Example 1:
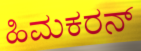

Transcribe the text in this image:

ಹಿಮಕರನ್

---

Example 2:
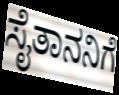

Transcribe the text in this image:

ಸೈತಾನನಿಗೆ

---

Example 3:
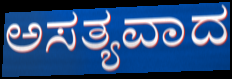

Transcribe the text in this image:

ಅಸತ್ಯವಾದ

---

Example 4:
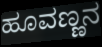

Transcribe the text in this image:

ಹೂವಣ್ಣನ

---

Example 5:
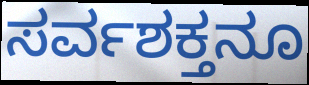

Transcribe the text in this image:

ಸರ್ವಶಕ್ತನೂ